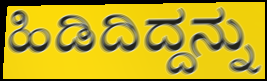
ಹಿಡಿದಿದ್ದನ್ನು